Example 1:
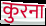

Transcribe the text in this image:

कुरना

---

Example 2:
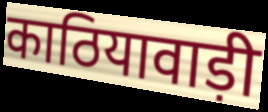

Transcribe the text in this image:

काठियावाड़ी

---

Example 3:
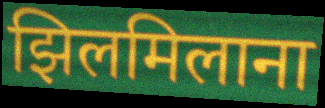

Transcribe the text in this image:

झिलमिलाना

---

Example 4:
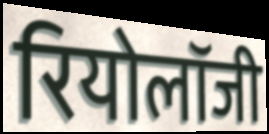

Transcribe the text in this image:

रियोलॉजी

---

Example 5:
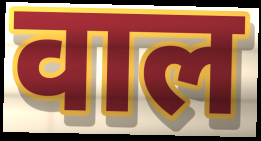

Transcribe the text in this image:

वाल